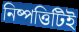
নিষ্পত্তিটিই